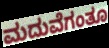
ಮದುವೆಗಂತೂ